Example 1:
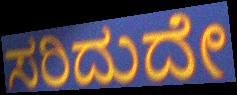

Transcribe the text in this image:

ಸರಿದುದೇ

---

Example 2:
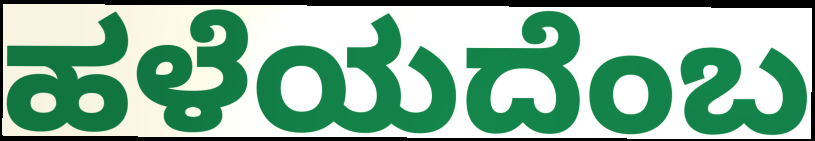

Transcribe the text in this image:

ಹಳೆಯದೆಂಬ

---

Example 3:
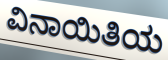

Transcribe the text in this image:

ವಿನಾಯಿತಿಯ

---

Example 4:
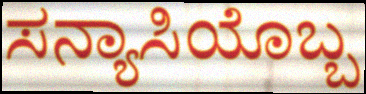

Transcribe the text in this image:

ಸನ್ಯಾಸಿಯೊಬ್ಬ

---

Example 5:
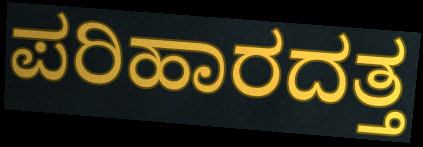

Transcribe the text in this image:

ಪರಿಹಾರದತ್ತ